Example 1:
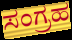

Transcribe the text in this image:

ಸಂಗ್ರಹ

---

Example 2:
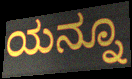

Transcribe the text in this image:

ಯನ್ನೂ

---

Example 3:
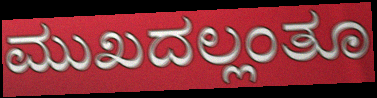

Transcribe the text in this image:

ಮುಖದಲ್ಲಂತೂ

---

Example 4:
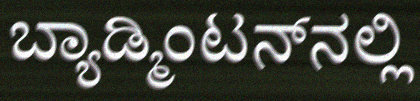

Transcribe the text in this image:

ಬ್ಯಾಡ್ಮಿಂಟನ್‌ನಲ್ಲಿ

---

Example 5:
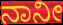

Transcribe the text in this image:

ನಾನೀ